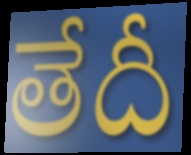
తేదీ